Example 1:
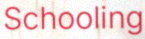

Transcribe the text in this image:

Schooling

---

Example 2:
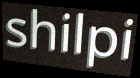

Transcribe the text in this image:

shilpi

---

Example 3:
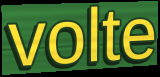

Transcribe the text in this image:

volte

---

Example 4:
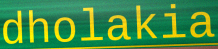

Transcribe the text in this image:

dholakia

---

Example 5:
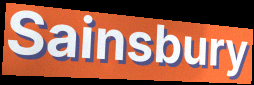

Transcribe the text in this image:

Sainsbury